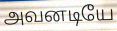
அவனடியே